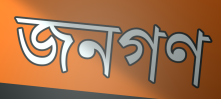
জনগণ